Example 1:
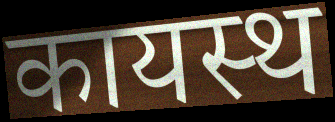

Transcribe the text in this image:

कायस्थ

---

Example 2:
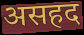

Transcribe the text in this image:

असहद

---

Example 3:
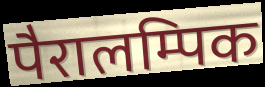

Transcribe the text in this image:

पैरालम्पिक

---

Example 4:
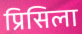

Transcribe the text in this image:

प्रिसिला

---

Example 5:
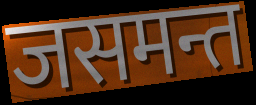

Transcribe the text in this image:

जसमन्त